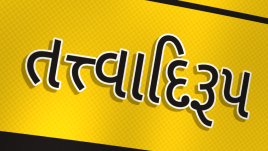
તત્ત્વાદિરૂપ